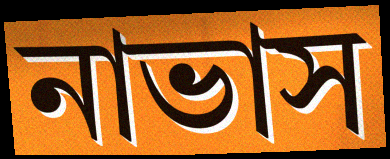
নাভাস